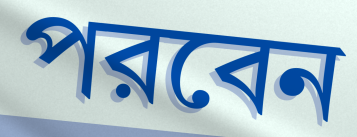
পরবেন